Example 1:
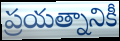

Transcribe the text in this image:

ప్రయత్నానికీ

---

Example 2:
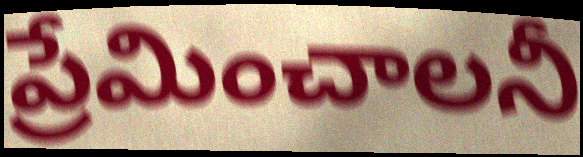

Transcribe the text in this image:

ప్రేమించాలనీ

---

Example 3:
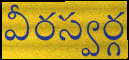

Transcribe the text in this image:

వీరస్వర్గ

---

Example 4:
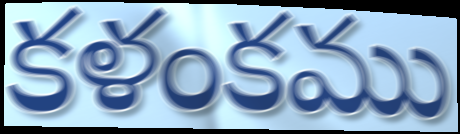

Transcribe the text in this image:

కళంకము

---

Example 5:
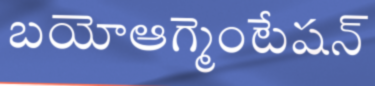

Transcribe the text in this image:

బయోఆగ్మెంటేషన్